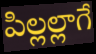
పిల్లల్లాగే